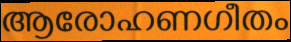
ആരോഹണഗീതം